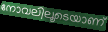
നോവലിലൂടെയാണ്